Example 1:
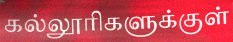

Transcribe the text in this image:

கல்லூரிகளுக்குள்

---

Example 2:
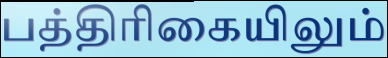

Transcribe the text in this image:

பத்திரிகையிலும்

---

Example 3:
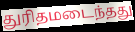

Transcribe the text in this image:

துரிதமடைந்தது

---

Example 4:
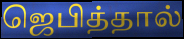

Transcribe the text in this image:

ஜெபித்தால்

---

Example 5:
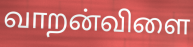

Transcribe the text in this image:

வாறன்விளை